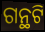
ଗନ୍ଥଟି